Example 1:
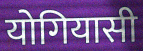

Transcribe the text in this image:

योगियासी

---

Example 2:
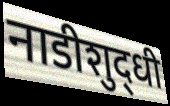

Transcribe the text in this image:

नाडीशुद्धी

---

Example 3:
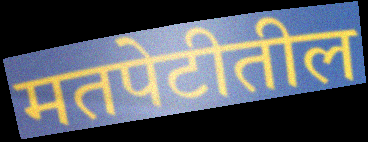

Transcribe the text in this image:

मतपेटीतील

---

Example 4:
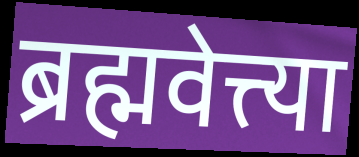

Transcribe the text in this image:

ब्रह्मवेत्त्या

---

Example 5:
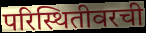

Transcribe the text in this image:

परिस्थितीवरची